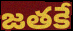
జతకే